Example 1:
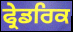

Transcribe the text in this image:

ਫ੍ਰੇਡਰਿਕ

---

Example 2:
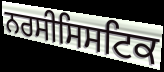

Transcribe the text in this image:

ਨਰਸੀਸਿਸਟਿਕ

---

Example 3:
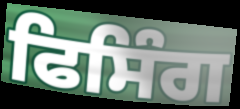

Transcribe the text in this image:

ਫਿਸਿੰਗ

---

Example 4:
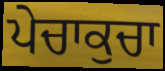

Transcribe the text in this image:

ਪੇਚਾਕੁਚਾ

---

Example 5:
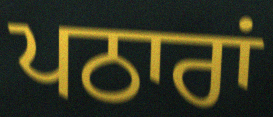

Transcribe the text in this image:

ਪਠਾਰਾਂ